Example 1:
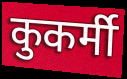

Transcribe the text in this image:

कुकर्मी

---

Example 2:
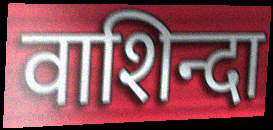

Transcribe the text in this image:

वाशिन्दा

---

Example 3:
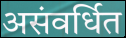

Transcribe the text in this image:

असंवर्धित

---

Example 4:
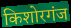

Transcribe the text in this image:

किशोरगंज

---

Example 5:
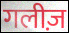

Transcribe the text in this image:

गलीज़